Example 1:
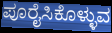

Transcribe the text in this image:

ಪೂರೈಸಿಕೊಳ್ಳುವ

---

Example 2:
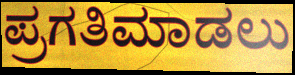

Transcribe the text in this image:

ಪ್ರಗತಿಮಾಡಲು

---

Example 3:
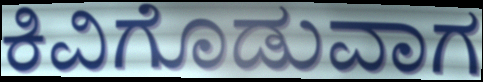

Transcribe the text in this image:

ಕಿವಿಗೊಡುವಾಗ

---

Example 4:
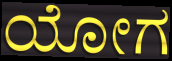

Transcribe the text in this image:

ಯೋಗ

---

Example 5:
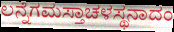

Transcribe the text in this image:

ಲನ್ನೆಗಮಸ್ತಾಚಳಸ್ಥನಾದಂ